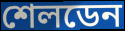
শেলডেন